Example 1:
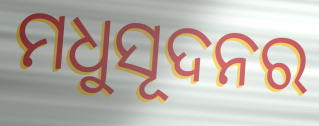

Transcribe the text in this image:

ମଧୁସୂଦନର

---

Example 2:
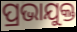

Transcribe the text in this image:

ପ୍ରଭାଯୁକ୍ତ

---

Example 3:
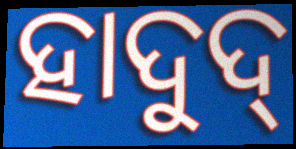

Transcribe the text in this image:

ହାଦୁଦ୍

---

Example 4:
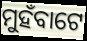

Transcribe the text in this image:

ମୁହଁବାଟେ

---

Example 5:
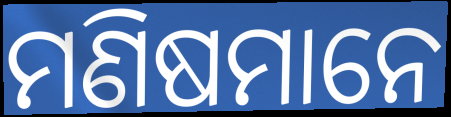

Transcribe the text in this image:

ମଣିଷମାନେ